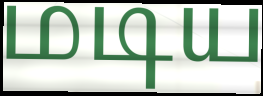
மடிய